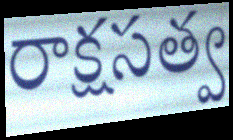
రాక్షసత్వ